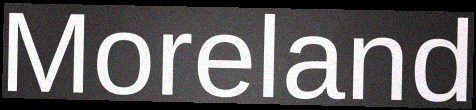
Moreland